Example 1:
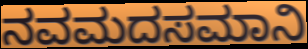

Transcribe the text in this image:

ನವಮದಸಮಾನಿ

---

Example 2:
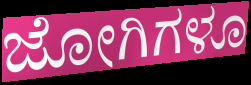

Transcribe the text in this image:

ಜೋಗಿಗಳೂ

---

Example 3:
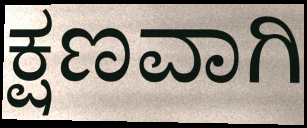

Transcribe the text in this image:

ಕ್ಷಣವಾಗಿ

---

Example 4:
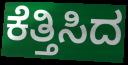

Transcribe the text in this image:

ಕೆತ್ತಿಸಿದ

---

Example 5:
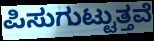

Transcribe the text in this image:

ಪಿಸುಗುಟ್ಟುತ್ತವೆ